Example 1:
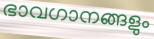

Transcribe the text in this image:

ഭാവഗാനങ്ങളും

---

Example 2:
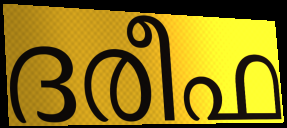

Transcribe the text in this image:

ദരീഫ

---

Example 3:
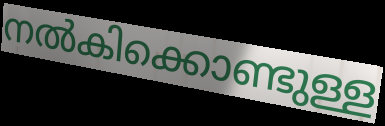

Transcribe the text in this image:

നൽകിക്കൊണ്ടുള്ള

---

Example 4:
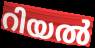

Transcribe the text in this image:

റിയൽ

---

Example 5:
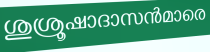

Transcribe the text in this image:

ശുശ്രൂഷാദാസൻമാരെ